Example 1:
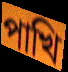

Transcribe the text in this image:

পাখি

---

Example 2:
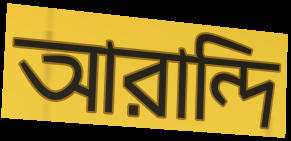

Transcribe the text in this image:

আরান্দি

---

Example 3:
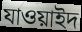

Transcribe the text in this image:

যাওয়াইদ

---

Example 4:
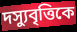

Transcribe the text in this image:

দস্যুবৃত্তিকে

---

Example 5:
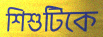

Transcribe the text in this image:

শিশুটিকে